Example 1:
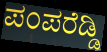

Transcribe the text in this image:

ಪಂಪರೆಡ್ಡಿ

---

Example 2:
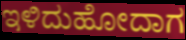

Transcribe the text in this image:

ಇಳಿದುಹೋದಾಗ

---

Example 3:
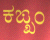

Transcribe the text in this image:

ಕಙ್ಖಂ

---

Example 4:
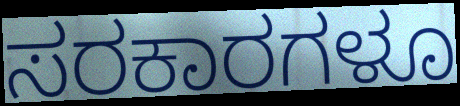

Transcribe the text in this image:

ಸರಕಾರಗಳೂ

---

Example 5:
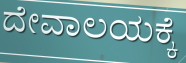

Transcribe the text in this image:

ದೇವಾಲಯಕ್ಕೆ